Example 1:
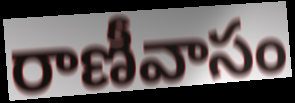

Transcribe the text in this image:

రాణీవాసం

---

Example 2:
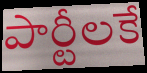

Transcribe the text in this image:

పార్టీలకే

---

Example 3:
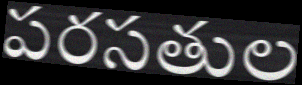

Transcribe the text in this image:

పరసతుల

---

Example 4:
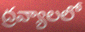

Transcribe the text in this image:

ద్రవ్యాలలో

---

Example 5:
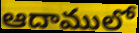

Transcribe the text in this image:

ఆదాములో